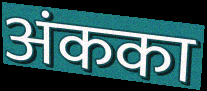
अंकका